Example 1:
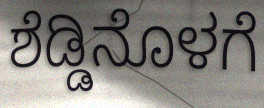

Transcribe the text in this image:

ಶೆಡ್ಡಿನೊಳಗೆ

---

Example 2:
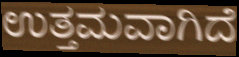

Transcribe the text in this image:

ಉತ್ತಮವಾಗಿದೆ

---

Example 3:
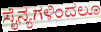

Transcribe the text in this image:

ಸೈನ್ಯಗಳಿಂದಲೂ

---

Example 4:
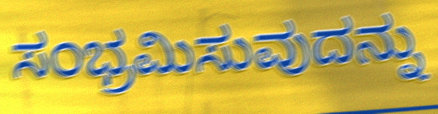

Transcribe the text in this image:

ಸಂಭ್ರಮಿಸುವುದನ್ನು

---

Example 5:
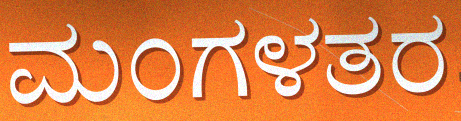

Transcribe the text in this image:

ಮಂಗಳತರ